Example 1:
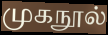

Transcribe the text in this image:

முகநூல்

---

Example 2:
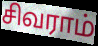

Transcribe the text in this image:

சிவராம்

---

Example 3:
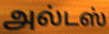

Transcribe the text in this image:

அல்டஸ்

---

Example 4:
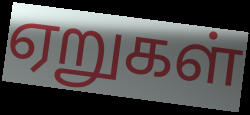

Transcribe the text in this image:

ஏறுகள்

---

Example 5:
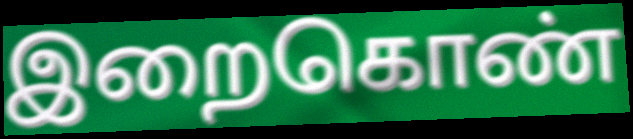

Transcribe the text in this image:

இறைகொண்